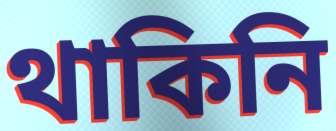
থাকিনি